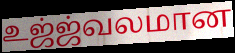
உஜ்ஜ்வலமான